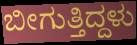
ಬೀಗುತ್ತಿದ್ದಳು